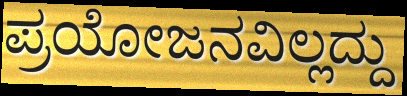
ಪ್ರಯೋಜನವಿಲ್ಲದ್ದು